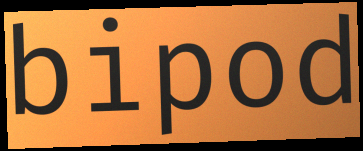
bipod